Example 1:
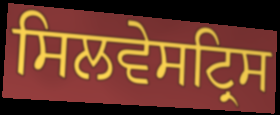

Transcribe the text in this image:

ਸਿਲਵੇਸਟ੍ਰਿਸ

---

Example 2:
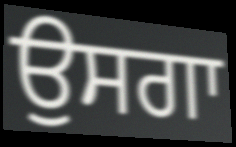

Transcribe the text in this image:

ਉਸਗਾ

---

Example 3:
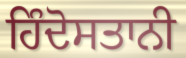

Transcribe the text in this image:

ਹਿੰਦੋਸਤਾਨੀ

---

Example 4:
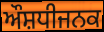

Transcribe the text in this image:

ਔਸ਼ਧੀਜਨਕ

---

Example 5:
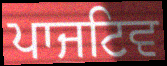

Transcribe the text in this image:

ਪਾਜਟਿਵ